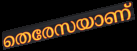
തെരേസയാണ്